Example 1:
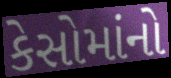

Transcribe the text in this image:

કેસોમાંનો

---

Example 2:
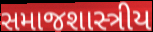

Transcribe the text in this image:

સમાજશાસ્ત્રીય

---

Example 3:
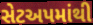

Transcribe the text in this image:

સેટઅપમાંથી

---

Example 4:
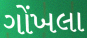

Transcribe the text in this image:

ગોંખલા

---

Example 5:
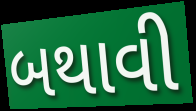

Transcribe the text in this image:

બથાવી